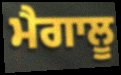
ਮੈਗਾਲੂ